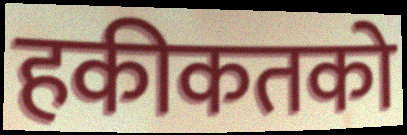
हकीकतको